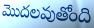
మొదలవుతోంది